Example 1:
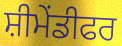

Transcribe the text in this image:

ਸ਼ੀਮੇਂਡੀਫਰ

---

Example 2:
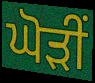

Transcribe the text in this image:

ਘੋੜੀਂ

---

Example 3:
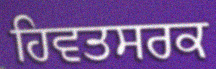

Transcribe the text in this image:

ਹਿਵਤਸਰਕ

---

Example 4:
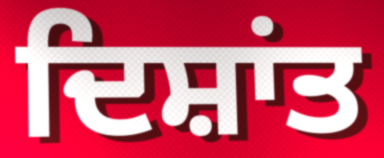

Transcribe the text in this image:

ਦਿਸ਼ਾਂਤ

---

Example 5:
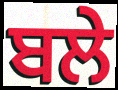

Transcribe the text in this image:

ਬਲੇ